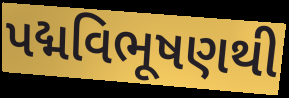
પદ્મવિભૂષણથી